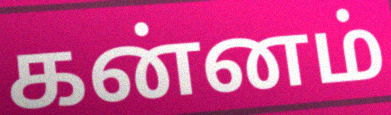
கன்னம்